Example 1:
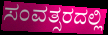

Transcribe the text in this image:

ಸಂವತ್ಸರದಲ್ಲಿ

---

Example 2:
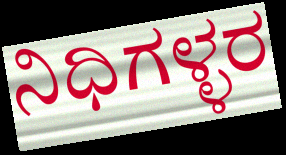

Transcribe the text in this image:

ನಿಧಿಗಳ್ಳರ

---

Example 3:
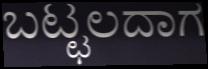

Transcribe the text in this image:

ಬಟ್ಟಲದಾಗ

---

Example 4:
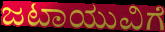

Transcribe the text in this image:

ಜಟಾಯುವಿಗೆ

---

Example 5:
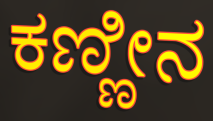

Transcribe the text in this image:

ಕಣ್ಣೀನ